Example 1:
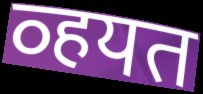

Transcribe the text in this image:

व्हयत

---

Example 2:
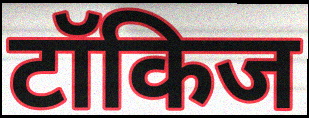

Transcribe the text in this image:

टॉकिज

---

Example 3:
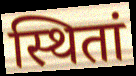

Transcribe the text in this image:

स्थितां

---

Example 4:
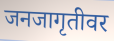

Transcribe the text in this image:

जनजागृतीवर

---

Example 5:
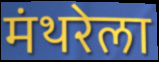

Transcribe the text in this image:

मंथरेला